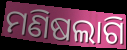
ମଣିଷଲାଗି